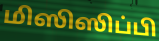
மிஸிஸிப்பி